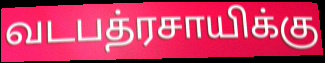
வடபத்ரசாயிக்கு